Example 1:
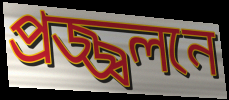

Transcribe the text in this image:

প্রজ্জ্বলনে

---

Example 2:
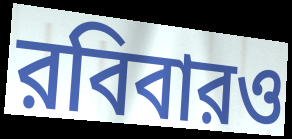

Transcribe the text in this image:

রবিবারও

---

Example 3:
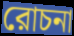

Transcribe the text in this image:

রোচনা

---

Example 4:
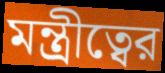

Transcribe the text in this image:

মন্ত্রীত্বের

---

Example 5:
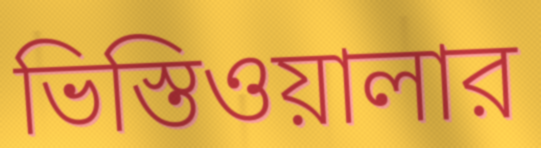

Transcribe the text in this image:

ভিস্তিওয়ালার